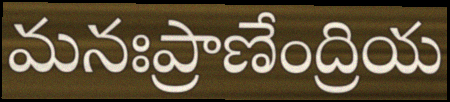
మనఃప్రాణేంద్రియ